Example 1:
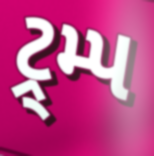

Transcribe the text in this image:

ટ્ર્મ્પ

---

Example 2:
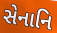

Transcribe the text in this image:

સેનાનિ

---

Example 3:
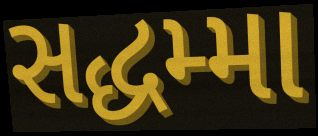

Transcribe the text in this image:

સદ્ધમ્મા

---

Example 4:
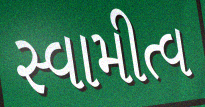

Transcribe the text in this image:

સ્વામીત્વ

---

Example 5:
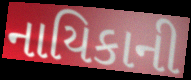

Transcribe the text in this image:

નાયિકાની